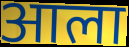
आला